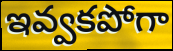
ఇవ్వకపోగా